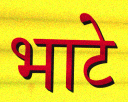
भाटे